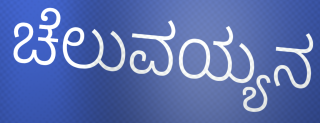
ಚೆಲುವಯ್ಯನ